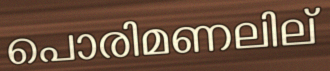
പൊരിമണലില്